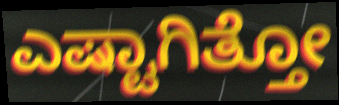
ಎಷ್ಟಾಗಿತ್ತೋ